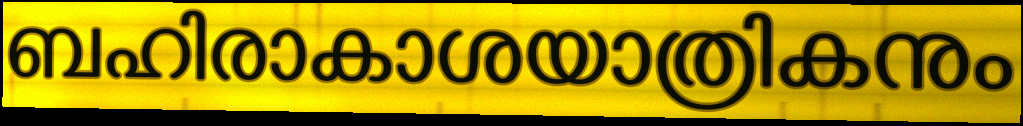
ബഹിരാകാശയാത്രികനും